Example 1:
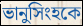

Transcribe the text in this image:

ভানুসিংহকে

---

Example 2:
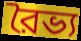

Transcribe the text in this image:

রৈভ্য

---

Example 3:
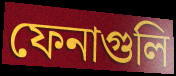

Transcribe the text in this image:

ফেনাগুলি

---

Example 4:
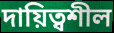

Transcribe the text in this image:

দায়িত্বশীল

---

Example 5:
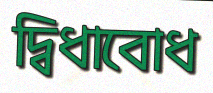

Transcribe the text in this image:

দ্বিধাবোধ